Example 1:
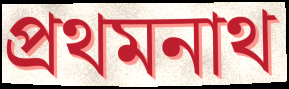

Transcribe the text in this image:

প্রথমনাথ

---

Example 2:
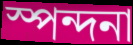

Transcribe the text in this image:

স্পন্দনা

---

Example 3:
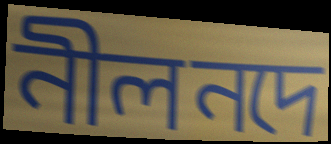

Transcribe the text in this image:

নীলনদে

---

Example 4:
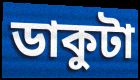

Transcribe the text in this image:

ডাকুটা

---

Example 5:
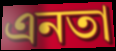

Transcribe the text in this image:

এনতা